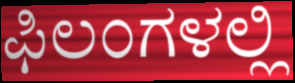
ಫಿಲಂಗಳಲ್ಲಿ